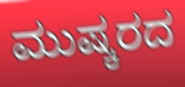
ಮುಷ್ಕರದ